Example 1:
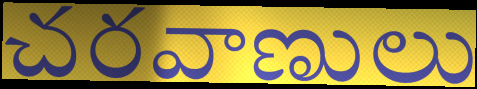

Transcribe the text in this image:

చరవాణులు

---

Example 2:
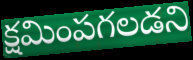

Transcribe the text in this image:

క్షమింపగలడని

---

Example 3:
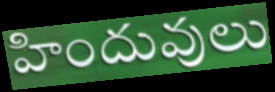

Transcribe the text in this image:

హిందువులు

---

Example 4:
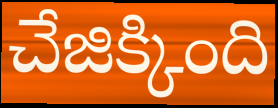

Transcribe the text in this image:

చేజిక్కింది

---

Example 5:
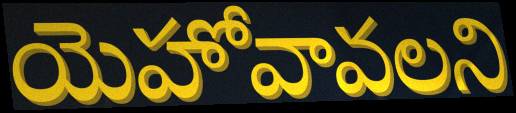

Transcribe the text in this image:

యెహోవావలని